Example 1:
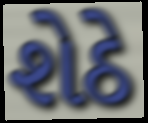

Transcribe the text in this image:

શેઠે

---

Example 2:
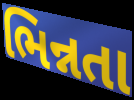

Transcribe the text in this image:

ભિન્નતા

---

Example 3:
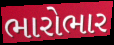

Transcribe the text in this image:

ભારોભાર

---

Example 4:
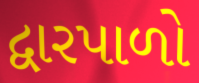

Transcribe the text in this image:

દ્વારપાળો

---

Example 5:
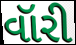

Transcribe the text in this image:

વૉરી